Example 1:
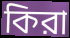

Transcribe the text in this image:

কিরা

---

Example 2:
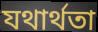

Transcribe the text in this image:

যথার্থতা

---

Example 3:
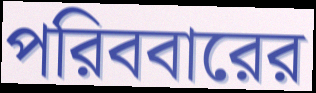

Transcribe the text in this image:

পরিববারের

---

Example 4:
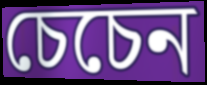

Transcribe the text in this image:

চেচেন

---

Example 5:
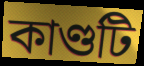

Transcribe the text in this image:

কাণ্ডটি